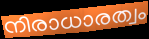
നിരാധാരത്വം